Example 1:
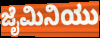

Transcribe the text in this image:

ಜೈಮಿನಿಯು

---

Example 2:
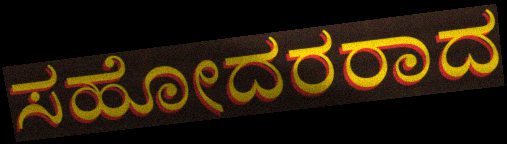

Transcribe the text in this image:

ಸಹೋದರರಾದ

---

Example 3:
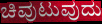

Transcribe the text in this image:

ಚಿವುಟುವುದು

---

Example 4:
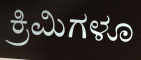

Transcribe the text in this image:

ಕ್ರಿಮಿಗಳೂ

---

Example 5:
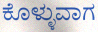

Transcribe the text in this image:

ಕೊಳ್ಳುವಾಗ